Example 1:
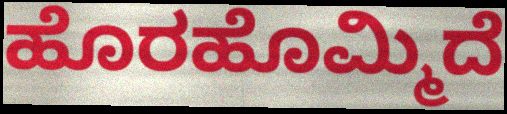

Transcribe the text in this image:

ಹೊರಹೊಮ್ಮಿದೆ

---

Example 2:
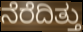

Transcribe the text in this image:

ನೆರೆದಿತ್ತು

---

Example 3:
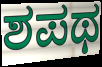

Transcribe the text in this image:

ಶಪಥ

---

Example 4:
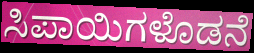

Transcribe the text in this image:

ಸಿಪಾಯಿಗಳೊಡನೆ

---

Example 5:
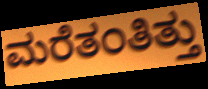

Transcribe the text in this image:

ಮರೆತಂತಿತ್ತು